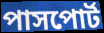
পাসপোর্ট